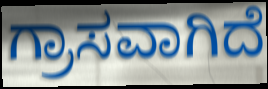
ಗ್ರಾಸವಾಗಿದೆ